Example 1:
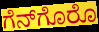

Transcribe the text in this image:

ಗೆನ್‌ಗೊರೊ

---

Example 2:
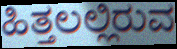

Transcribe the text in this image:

ಹಿತ್ತಲಲ್ಲಿರುವ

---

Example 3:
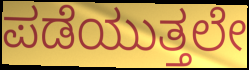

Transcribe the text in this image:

ಪಡೆಯುತ್ತಲೇ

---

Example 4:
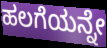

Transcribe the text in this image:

ಹಲಗೆಯನ್ನೇ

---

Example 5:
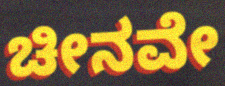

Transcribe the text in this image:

ಚೀನವೇ